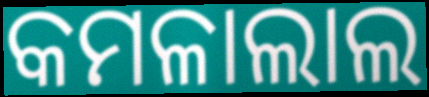
କମଳାଲାଲ